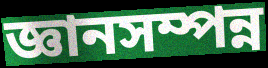
জ্ঞানসম্পন্ন